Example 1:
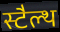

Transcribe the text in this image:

स्टैल्थ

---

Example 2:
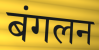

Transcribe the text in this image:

बंगलन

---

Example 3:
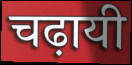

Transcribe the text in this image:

चढ़ायी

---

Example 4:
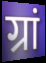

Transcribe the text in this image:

ग्रां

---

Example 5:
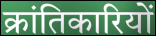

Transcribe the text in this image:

क्रांतिकारियों